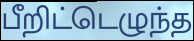
பீறிட்டெழுந்த